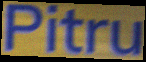
Pitru